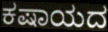
ಕಷಾಯದ